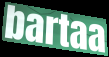
bartaa